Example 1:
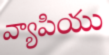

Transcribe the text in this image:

వ్యాపియు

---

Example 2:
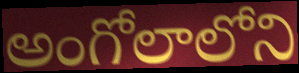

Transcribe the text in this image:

అంగోలాలోని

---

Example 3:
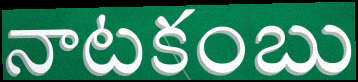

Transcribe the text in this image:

నాటకంబు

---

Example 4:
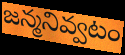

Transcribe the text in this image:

జన్మనివ్వటం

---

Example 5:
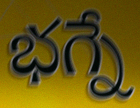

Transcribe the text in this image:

భగ్నే